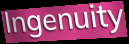
Ingenuity